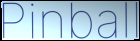
Pinball